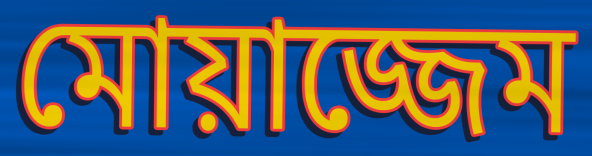
মোয়াজ্জেম